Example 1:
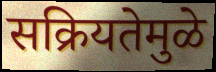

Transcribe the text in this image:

सक्रियतेमुळे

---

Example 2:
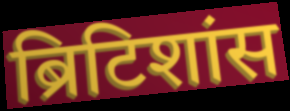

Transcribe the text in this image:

ब्रिटिशांस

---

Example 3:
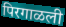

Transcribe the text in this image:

पिरगाळली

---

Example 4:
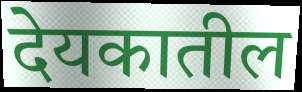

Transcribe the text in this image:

देयकातील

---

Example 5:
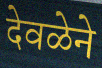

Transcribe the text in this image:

देवळेने